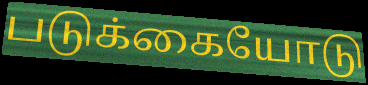
படுக்கையோடு